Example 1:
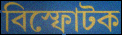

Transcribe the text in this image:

বিস্ফোটক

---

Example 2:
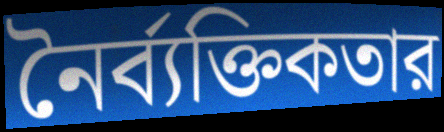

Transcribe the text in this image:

নৈর্ব্যক্তিকতার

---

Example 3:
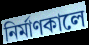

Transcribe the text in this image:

নির্মাণকালে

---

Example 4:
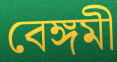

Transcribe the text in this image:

বেঙ্গমী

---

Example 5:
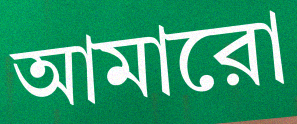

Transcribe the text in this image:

আমারো